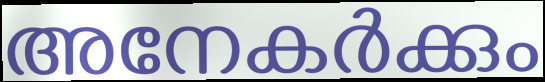
അനേകർക്കും